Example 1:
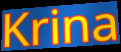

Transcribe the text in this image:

Krina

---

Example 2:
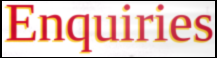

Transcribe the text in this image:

Enquiries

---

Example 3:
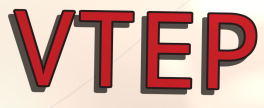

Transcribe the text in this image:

VTEP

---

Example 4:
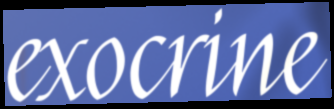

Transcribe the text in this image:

exocrine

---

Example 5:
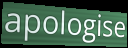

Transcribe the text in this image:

apologise